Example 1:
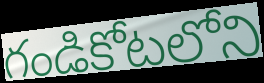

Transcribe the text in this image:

గండికోటలోని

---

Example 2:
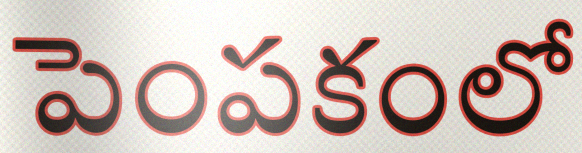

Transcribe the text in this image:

పెంపకంలో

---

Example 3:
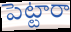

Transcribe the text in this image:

పెట్టారా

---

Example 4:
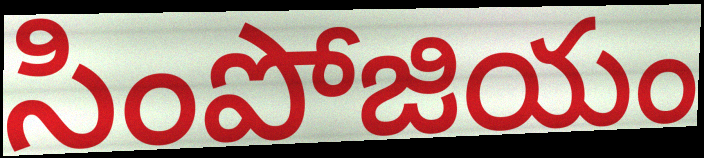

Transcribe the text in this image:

సింపోజియం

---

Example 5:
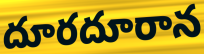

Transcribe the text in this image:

దూరదూరాన